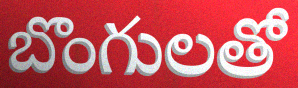
బొంగులతో